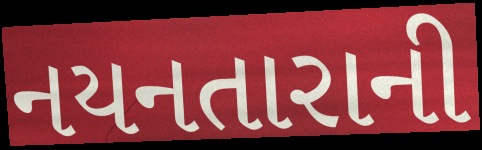
નયનતારાની